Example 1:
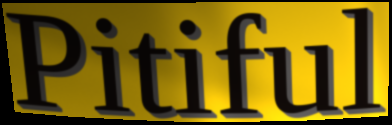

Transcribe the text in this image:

Pitiful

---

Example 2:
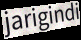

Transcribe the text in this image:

jarigindi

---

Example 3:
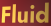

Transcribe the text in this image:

Fluid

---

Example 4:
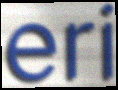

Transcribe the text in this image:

eri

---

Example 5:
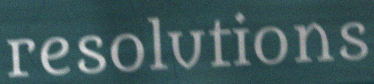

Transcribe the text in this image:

resolutions